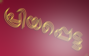
പ്രിയപ്പെട്ട